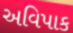
અવિપાક